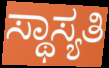
ಸ್ಥಾಸ್ಯತಿ